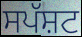
ਸਪੱਸ਼ਟ